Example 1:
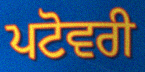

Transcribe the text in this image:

ਪਟੋਵਰੀ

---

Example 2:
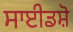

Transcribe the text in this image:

ਸਾਈਡਸ਼ੋ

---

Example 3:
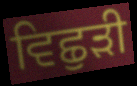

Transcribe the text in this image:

ਵਿਛੁੜੀ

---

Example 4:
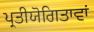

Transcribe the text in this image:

ਪ੍ਰਤੀਯੋਗਿਤਾਵਾਂ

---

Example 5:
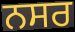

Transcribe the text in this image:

ਨਸਰ